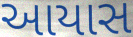
આયાસ